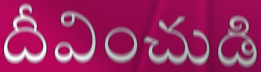
దీవించుడి